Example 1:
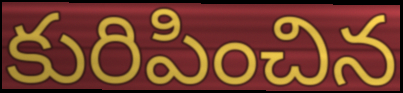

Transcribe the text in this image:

కురిపించిన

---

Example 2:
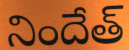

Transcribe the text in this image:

నిందేత్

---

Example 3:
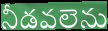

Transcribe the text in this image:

నీడవలెను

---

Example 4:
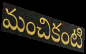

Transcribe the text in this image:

మంచికంటి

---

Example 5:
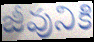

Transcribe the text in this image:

జీవునికి